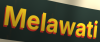
Melawati